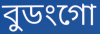
বুডংগো